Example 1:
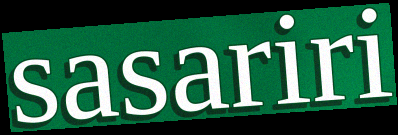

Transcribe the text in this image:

sasariri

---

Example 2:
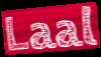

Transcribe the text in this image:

Laal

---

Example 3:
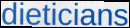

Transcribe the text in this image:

dieticians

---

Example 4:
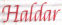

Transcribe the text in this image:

Haldar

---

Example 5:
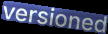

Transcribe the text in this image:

versioned